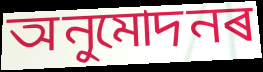
অনুমোদনৰ